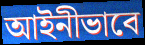
আইনীভাবে